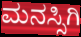
ಮನಸ್ಸಿಗಿ